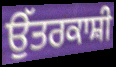
ਉੱਤਰਕਾਸ਼ੀ